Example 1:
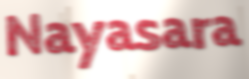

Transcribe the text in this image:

Nayasara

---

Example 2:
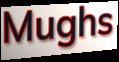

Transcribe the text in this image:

Mughs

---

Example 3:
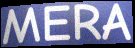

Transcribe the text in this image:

MERA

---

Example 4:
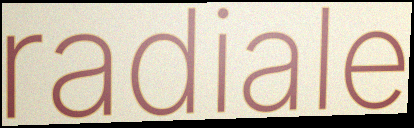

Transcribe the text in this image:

radiale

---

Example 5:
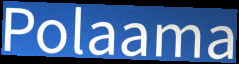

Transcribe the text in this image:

Polaama